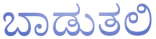
ಬಾಡುತಲಿ